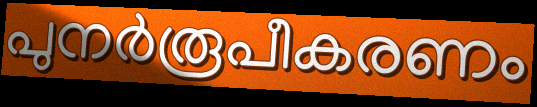
പുനർരൂപീകരണം